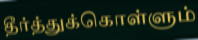
தீர்த்துக்கொள்ளும்